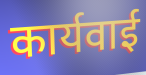
कार्यवाई